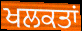
ਖਲਕਤਾਂ